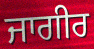
ਜਾਗੀਰ